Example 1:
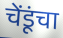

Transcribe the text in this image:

चेंडूंचा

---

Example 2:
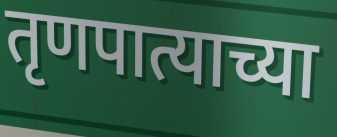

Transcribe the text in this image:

तृणपात्याच्या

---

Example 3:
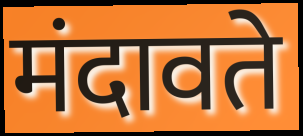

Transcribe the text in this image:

मंदावते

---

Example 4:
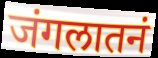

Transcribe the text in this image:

जंगलातनं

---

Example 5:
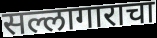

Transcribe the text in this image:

सल्लागाराचा